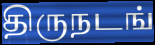
திருநடங்